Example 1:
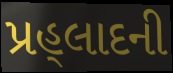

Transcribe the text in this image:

પ્રહ્‌લાદની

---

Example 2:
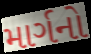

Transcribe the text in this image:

માર્ગનો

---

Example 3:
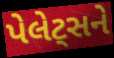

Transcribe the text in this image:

પેલેટ્સને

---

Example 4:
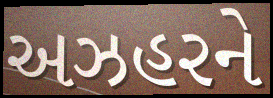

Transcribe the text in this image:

અઝહરને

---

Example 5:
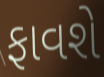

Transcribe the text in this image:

ફાવશે